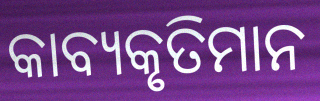
କାବ୍ୟକୃତିମାନ